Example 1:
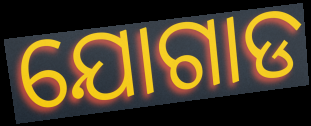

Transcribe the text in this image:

ଯୋଗାଡ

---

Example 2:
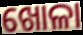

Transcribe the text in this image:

ଖୋଳା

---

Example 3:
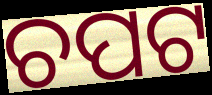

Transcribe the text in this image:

ଚପଟ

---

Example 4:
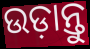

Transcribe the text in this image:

ଉଡ଼ାନ୍ତୁ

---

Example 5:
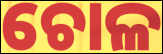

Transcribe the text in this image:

ଚୋଳ